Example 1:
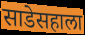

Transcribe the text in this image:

साडेसहाला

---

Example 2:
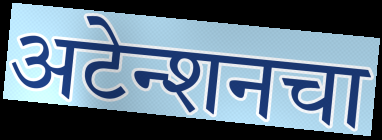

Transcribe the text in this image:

अटेन्शनचा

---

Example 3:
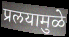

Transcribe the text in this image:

प्रलयामुळे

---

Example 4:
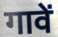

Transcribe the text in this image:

गावें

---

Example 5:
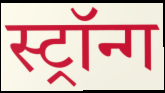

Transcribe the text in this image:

स्ट्रॉन्ग